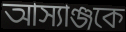
আস্যাঞ্জকে